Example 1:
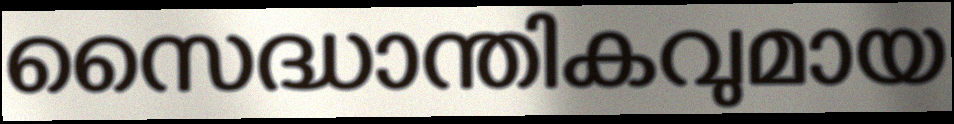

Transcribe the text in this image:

സൈദ്ധാന്തികവുമായ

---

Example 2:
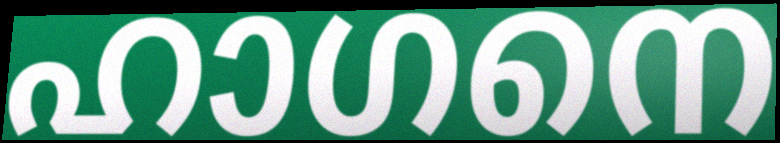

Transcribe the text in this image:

ഹാഗനെ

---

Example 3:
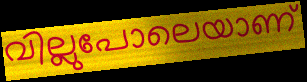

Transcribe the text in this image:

വില്ലുപോലെയാണ്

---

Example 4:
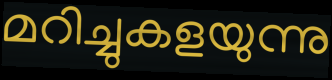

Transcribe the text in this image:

മറിച്ചുകളയുന്നു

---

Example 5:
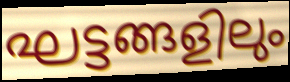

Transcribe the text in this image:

ഘട്ടങ്ങളിലും